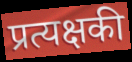
प्रत्यक्षकी